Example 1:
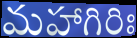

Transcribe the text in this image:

మహాగిరిః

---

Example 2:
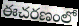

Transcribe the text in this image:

ఈచరణంలో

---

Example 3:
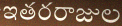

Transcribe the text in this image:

ఇతరరాజుల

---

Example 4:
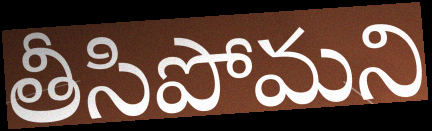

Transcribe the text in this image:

తీసిపోమని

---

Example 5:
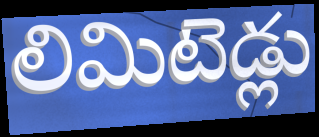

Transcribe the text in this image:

లిమిటెడ్లు